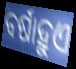
ବର୍ଷାହୁଏ